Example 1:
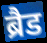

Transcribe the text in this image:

ब्रैड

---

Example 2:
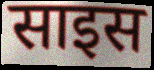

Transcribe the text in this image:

साइस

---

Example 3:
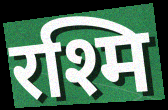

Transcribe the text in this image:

रश्मि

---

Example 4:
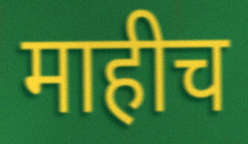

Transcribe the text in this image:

माहीच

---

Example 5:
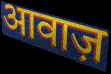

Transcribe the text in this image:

आवाज़